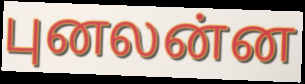
புனலன்ன